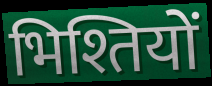
भिश्तियों